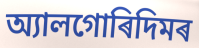
অ্যালগোৰিদিমৰ